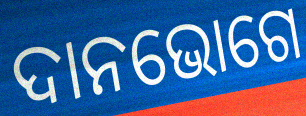
ଦାନଭୋଗେ